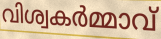
വിശ്വകർമ്മാവ്